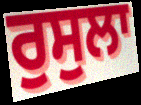
ਰੁਸੁਲਾ